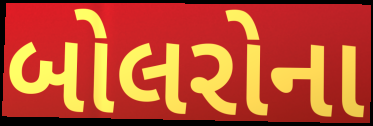
બોલરોના